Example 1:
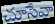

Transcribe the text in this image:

చూసేవా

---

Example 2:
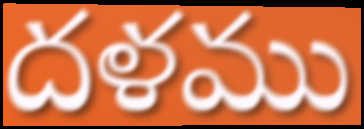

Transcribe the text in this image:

దళము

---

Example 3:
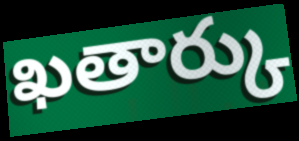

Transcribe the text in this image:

ఖతార్కు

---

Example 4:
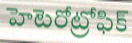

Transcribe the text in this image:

హెటెరోట్రోఫిక్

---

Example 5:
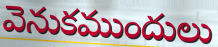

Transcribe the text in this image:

వెనుకముందులు